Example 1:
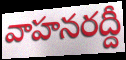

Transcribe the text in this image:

వాహనరద్దీ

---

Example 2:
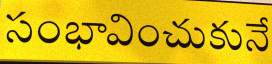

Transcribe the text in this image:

సంభావించుకునే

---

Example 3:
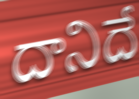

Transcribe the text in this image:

దానిదే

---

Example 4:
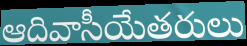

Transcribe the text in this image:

ఆదివాసీయేతరులు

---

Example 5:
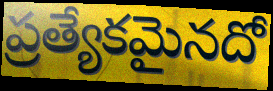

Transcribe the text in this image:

ప్రత్యేకమైనదో